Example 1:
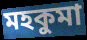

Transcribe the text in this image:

মহকুমা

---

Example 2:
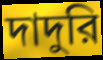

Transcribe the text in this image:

দাদুরি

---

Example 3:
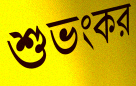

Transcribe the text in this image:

শুভংকর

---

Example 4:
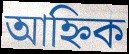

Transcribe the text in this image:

আহ্নিক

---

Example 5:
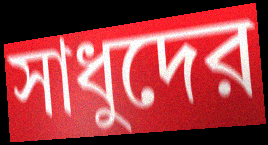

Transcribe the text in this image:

সাধুদের